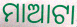
ମାଆଟା